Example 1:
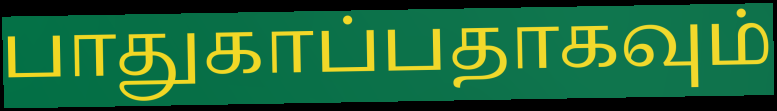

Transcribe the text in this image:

பாதுகாப்பதாகவும்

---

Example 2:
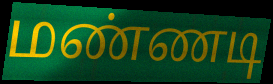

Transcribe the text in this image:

மண்ணடி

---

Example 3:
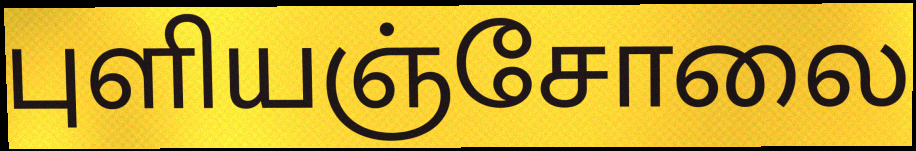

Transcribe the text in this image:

புளியஞ்சோலை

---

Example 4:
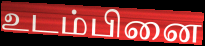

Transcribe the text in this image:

உடம்பினை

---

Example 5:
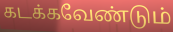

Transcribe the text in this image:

கடக்கவேண்டும்